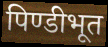
पिण्डीभूत